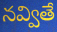
నవ్వితే